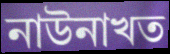
নাউনাখত